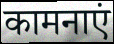
कामनाएं